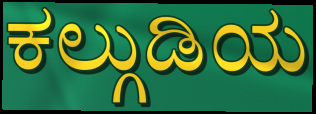
ಕಲ್ಗುಡಿಯ